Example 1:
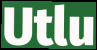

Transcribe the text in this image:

Utlu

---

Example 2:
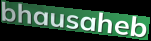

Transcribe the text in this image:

bhausaheb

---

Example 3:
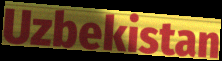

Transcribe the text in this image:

Uzbekistan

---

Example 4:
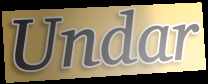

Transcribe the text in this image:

Undar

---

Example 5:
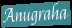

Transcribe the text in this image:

Anugraha